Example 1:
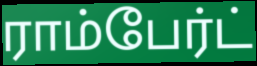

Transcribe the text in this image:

ராம்பேர்ட்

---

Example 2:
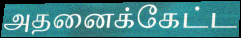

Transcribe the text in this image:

அதனைக்கேட்ட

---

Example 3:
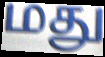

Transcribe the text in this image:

மது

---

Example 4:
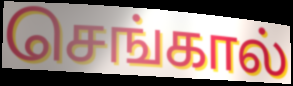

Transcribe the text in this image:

செங்கால்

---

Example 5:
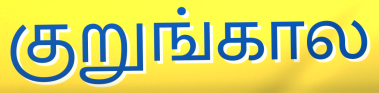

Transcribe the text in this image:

குறுங்கால